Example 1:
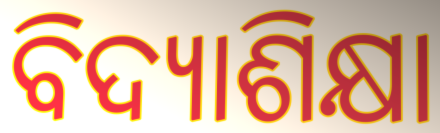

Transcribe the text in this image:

ବିଦ୍ୟାଶିକ୍ଷା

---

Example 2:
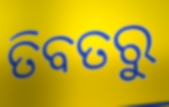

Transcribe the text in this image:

ତିବତରୁ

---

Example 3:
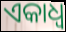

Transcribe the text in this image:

ଏକାଧ୍ଵ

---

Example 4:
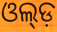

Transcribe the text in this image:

ଓଲ୍ଡ଼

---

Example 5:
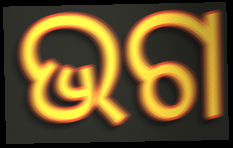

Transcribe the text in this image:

ଭଗ